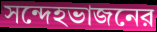
সন্দেহভাজনের